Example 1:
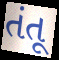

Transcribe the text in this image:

તંતૂ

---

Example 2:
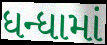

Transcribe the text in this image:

ધન્ધામાં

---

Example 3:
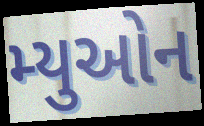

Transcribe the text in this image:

મ્યુઓન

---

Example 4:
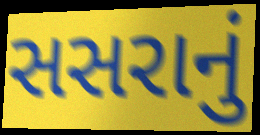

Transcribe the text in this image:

સસરાનું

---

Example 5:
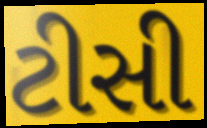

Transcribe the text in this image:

ટીસી